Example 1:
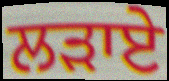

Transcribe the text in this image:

ਲੜਾਏ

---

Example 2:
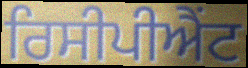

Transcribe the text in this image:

ਰਿਸੀਪੀਐਂਟ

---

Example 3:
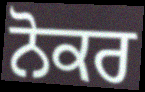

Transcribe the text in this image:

ਨੋਕਰ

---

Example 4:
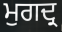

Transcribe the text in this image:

ਮੁਗਦ੍ਰ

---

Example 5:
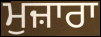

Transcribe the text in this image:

ਮੁਜ਼ਾਰਾ